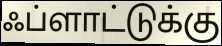
ஃப்ளாட்டுக்கு